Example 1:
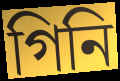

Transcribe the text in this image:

গিনি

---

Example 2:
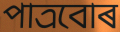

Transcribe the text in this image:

পাত্ৰবোৰ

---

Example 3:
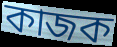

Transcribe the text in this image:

কাজক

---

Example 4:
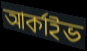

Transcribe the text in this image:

আৰ্কাইভ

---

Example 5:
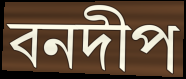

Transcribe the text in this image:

বনদীপ